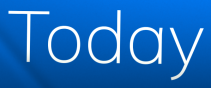
Today